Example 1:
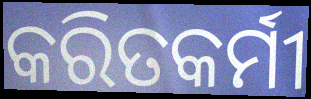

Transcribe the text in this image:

କରିତକର୍ମୀ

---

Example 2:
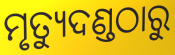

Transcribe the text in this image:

ମୃତ୍ୟୁଦଣ୍ଡଠାରୁ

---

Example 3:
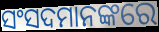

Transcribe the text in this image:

ସଂସଦମାନଙ୍କରେ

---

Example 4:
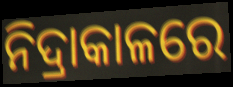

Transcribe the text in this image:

ନିଦ୍ରାକାଳରେ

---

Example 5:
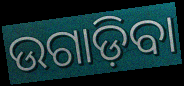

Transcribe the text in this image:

ଉଗାଡ଼ିବା